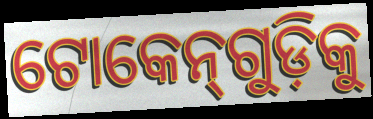
ଟୋକେନ୍‌ଗୁଡ଼ିକୁ